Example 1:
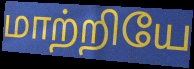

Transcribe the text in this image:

மாற்றியே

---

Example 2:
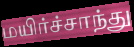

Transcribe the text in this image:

மயிர்ச்சாந்து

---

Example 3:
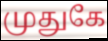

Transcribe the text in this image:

முதுகே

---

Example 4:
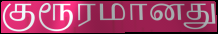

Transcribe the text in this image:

குரூரமானது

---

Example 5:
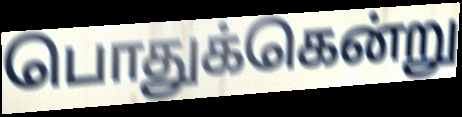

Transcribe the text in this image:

பொதுக்கென்று